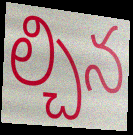
ల్చిన